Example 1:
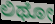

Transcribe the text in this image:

ಲಿಥೋ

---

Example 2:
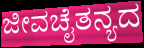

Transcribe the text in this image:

ಜೀವಚೈತನ್ಯದ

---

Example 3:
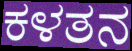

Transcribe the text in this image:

ಕಳತನ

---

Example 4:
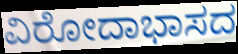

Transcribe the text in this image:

ವಿರೋದಾಭಾಸದ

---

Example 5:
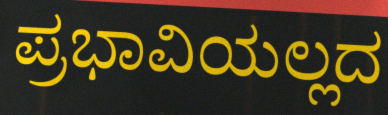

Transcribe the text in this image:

ಪ್ರಭಾವಿಯಲ್ಲದ